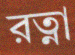
রত্না